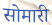
सोमारी